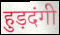
हुड़दंगी